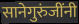
सानेगुरुंजींनी